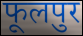
फूलपुर